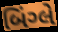
બિંગ્લે